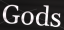
Gods